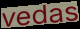
vedas